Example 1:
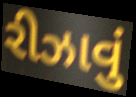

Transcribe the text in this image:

રીઝાવું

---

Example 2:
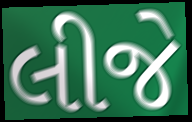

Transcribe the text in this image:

લીજે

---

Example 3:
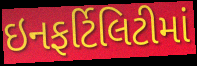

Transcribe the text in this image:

ઇનફર્ટિલિટીમાં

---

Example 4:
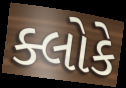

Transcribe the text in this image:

ક્લોકે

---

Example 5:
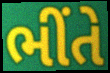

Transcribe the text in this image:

ભીંતે